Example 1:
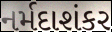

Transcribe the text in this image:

નર્મદાશંકર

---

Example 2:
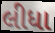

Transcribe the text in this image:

લીધા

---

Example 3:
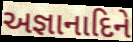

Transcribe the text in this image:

અજ્ઞાનાદિને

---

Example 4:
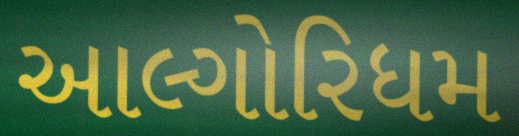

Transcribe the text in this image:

આલ્ગોરિધમ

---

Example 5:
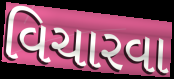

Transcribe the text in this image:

વિચારવા